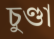
চুণ্ডা